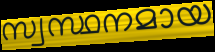
സ്വസ്ഥനമായ